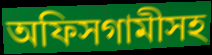
অফিসগামীসহ